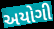
અયોગી